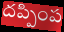
దప్పింప